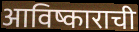
आविष्काराची